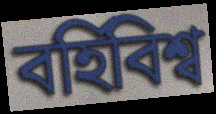
বর্হিবিশ্ব